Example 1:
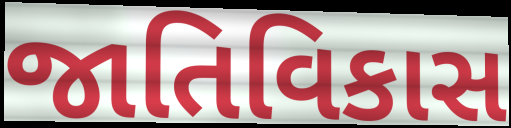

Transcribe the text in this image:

જાતિવિકાસ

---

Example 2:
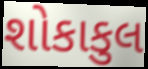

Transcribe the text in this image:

શોકાકુલ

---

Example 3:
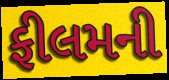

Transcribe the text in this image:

ફીલમની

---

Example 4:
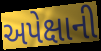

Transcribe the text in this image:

અપેક્ષાની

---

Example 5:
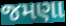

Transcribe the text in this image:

જમણા